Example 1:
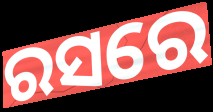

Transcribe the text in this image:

ରସରେ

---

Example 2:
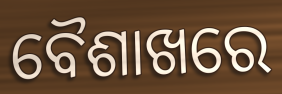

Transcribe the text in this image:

ବୈଶାଖରେ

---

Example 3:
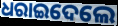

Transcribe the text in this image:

ଧରାଇଦେଲେ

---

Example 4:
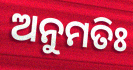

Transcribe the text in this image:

ଅନୁମତିଃ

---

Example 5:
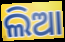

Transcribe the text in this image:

ଲିଆ